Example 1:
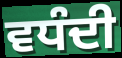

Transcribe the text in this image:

ਵਧੰਦੀ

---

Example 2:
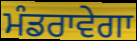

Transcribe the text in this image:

ਮੰਡਰਾਵੇਗਾ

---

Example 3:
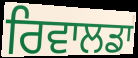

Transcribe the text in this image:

ਰਿਵਾਲਡਾ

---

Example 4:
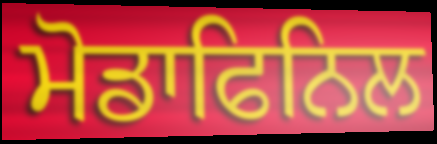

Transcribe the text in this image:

ਮੋਡਾਫਿਨਿਲ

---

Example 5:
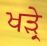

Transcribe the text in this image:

ਖੜ੍ਰੇ